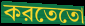
করতেতো